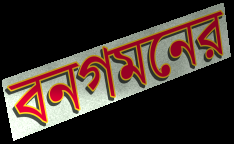
বনগমনের